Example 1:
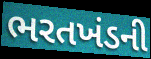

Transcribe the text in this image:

ભરતખંડની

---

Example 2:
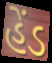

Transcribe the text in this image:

હેંડ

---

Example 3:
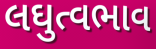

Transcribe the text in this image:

લઘુત્વભાવ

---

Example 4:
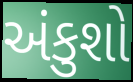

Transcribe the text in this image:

અંકુશો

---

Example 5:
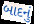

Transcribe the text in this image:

બાદનું